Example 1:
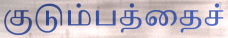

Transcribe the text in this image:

குடும்பத்தைச்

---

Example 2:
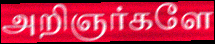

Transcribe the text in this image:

அறிஞர்களே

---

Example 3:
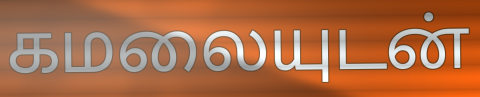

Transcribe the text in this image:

கமலையுடன்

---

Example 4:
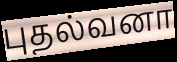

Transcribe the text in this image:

புதல்வனா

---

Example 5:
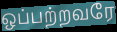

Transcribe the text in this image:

ஒப்பற்றவரே